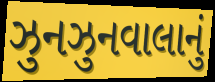
ઝુનઝુનવાલાનું